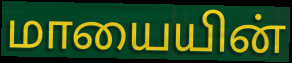
மாயையின்